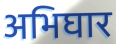
अभिघार